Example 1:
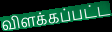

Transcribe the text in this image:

விளக்கப்பட்ட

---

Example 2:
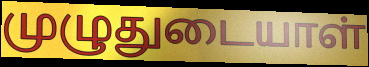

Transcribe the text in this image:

முழுதுடையாள்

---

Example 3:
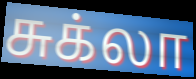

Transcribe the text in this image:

சுக்லா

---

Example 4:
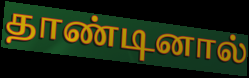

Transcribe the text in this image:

தாண்டினால்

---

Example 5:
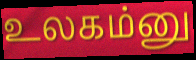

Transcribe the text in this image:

உலகம்னு